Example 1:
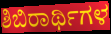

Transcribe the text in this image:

ಶಿಬಿರಾರ್ಥಿಗಳ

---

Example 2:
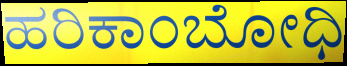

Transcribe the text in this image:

ಹರಿಕಾಂಬೋಧಿ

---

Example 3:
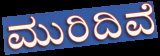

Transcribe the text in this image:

ಮುರಿದಿವೆ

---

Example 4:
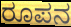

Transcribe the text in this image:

ರೂಪನ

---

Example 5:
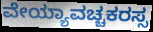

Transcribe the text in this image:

ವೇಯ್ಯಾವಚ್ಚಕರಸ್ಸ